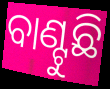
ବାଣ୍ଟୁଛି